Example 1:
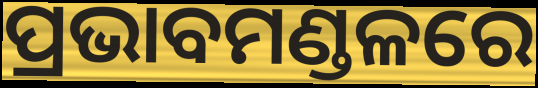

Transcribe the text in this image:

ପ୍ରଭାବମଣ୍ଡଳରେ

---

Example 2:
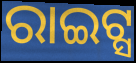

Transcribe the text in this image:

ରାଇଟ୍ସ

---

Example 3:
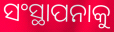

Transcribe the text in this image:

ସଂସ୍ଥାପନାକୁ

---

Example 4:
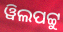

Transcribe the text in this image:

ୱିଲପଟ୍ଟୁ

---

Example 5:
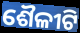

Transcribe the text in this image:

ଶୈଳୀଟି